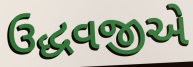
ઉદ્ધવજીએ